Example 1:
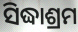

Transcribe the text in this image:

ସିଦ୍ଧାଶ୍ରମ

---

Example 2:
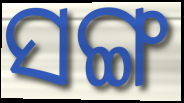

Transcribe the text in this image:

ସଙ୍ଗ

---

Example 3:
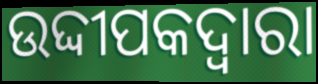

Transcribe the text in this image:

ଉଦ୍ଦୀପକଦ୍ବାରା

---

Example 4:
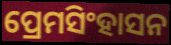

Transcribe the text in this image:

ପ୍ରେମସିଂହାସନ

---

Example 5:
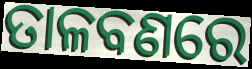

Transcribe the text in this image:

ତାଳବଣରେ